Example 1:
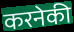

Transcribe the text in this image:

करनेकी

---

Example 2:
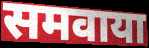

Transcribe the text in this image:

समवाया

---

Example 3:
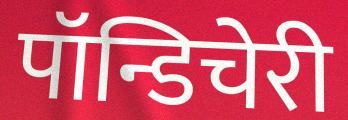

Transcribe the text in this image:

पॉन्डिचेरी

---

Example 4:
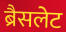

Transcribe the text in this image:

ब्रैसलेट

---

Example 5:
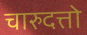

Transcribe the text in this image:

चारुदत्तो